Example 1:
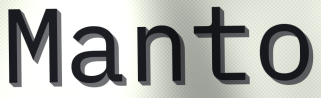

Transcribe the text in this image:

Manto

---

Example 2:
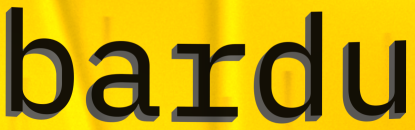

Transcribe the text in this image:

bardu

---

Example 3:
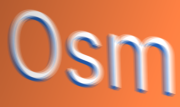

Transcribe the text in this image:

Osm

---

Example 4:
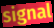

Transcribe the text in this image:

signal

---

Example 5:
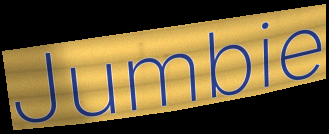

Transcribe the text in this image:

Jumbie